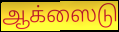
ஆக்ஸைடு